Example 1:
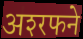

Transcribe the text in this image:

अश्रफने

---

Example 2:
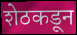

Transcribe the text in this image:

शेठकडून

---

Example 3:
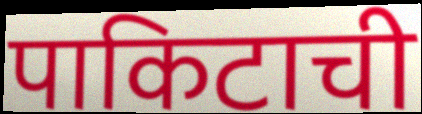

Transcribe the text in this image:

पाकिटाची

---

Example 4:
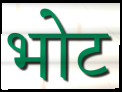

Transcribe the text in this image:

भोट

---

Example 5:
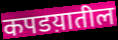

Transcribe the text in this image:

कपडय़ातील